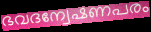
ഭവദന്വേഷണപരം